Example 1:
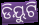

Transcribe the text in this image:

ଡିୟୁଟି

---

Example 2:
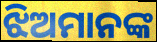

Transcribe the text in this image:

ଝିଅମାନଙ୍କ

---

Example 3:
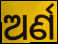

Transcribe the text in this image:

ଅର୍ଣ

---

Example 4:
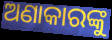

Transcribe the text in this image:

ଅଣାକାରଙ୍କୁ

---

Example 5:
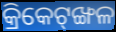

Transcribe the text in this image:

କ୍ରିକେଟ୍‌ଙ୍ଖଳ